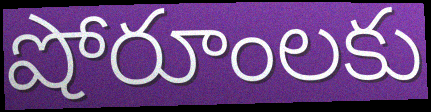
షోరూంలకు